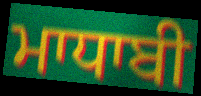
ਮਾਧਾਬੀ